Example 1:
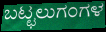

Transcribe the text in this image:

ಬಟ್ಟಲುಗಂಗಳ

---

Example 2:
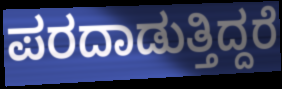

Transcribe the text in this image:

ಪರದಾಡುತ್ತಿದ್ದರೆ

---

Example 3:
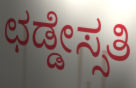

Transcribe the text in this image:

ಛಡ್ಡೇಸ್ಸತಿ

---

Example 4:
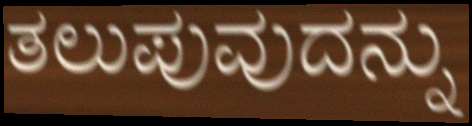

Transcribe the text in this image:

ತಲುಪುವುದನ್ನು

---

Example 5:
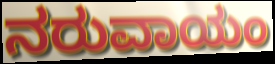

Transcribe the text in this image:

ನರುವಾಯಂ